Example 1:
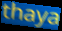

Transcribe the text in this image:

thaya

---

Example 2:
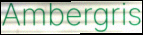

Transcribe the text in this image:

Ambergris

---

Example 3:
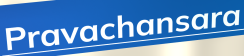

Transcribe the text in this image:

Pravachansara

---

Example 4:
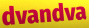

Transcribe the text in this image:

dvandva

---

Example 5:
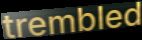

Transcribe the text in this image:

trembled